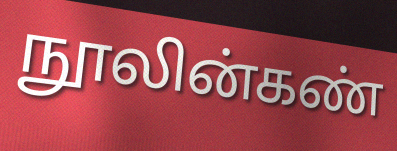
நூலின்கண்